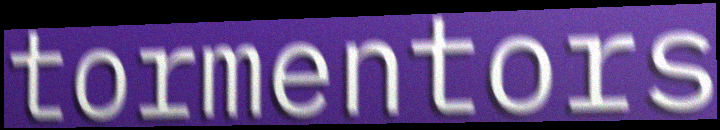
tormentors